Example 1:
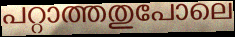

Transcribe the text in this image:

പറ്റാത്തതുപോലെ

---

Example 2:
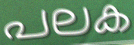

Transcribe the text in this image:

പലക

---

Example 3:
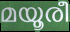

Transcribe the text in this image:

മയൂരീ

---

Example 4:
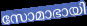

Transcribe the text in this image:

സോമാഭായി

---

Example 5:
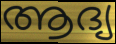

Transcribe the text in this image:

ആദ്യ